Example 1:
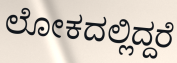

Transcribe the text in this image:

ಲೋಕದಲ್ಲಿದ್ದರೆ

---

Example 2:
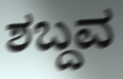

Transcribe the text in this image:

ಶಬ್ದವ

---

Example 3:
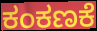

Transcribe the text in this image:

ಕಂಕಣಕೆ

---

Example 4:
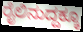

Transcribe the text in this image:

ರೈಲಿನುದ್ದಕ್ಕೂ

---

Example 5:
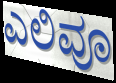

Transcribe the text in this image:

ಎಲಿವೂ